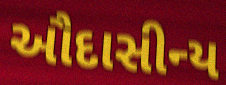
ઔદાસીન્ય